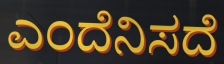
ಎಂದೆನಿಸದೆ